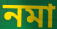
নমা